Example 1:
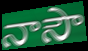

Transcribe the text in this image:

నాసౌ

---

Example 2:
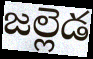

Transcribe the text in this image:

జల్లెడ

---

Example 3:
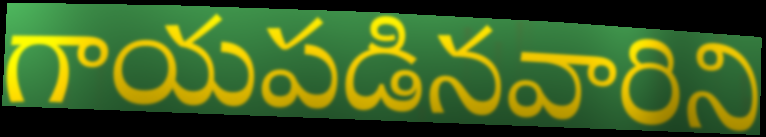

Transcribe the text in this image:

గాయపడినవారిని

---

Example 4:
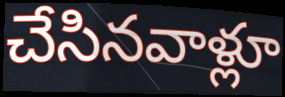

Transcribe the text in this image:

చేసినవాళ్లూ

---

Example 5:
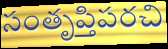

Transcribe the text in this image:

సంతృప్తిపరచి